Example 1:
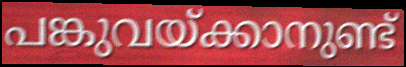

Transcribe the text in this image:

പങ്കുവയ്ക്കാനുണ്ട്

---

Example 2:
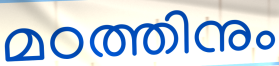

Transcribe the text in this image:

മഠത്തിനും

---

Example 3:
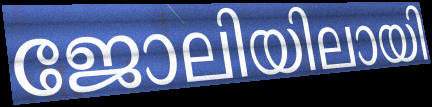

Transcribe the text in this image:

ജോലിയിലായി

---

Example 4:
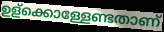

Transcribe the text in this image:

ഉള്ക്കൊള്ളേണ്ടതാണ്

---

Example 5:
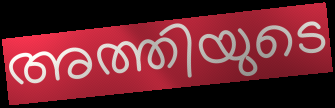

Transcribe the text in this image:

അത്തിയുടെ